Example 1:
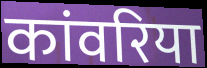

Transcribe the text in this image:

कांवरिया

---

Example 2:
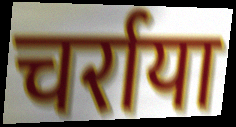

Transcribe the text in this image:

चर्राया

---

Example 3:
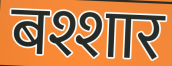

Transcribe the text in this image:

बश्शार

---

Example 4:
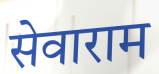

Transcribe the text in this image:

सेवाराम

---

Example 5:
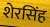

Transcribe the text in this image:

शेरसिंह